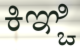
ಕಿಞ್ಚಿ